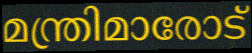
മന്ത്രിമാരോട്